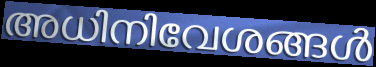
അധിനിവേശങ്ങൾ